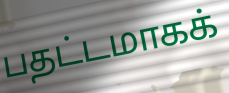
பதட்டமாகக்